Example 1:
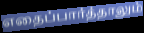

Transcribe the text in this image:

எதைப்பார்த்தாலும்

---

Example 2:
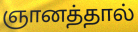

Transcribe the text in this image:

ஞானத்தால்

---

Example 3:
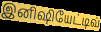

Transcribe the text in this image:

இனிஷியேட்டிவ்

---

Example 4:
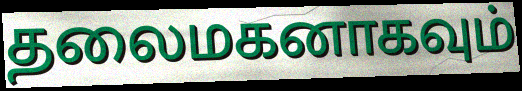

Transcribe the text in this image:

தலைமகனாகவும்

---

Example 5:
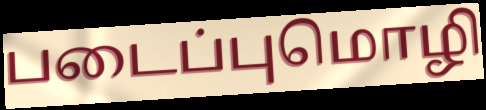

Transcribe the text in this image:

படைப்புமொழி